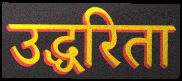
उद्धरिता